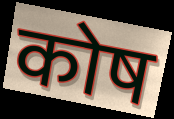
कोष